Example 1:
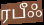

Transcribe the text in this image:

ரபீஃ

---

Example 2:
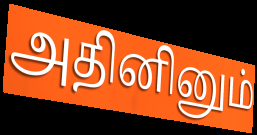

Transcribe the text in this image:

அதினினும்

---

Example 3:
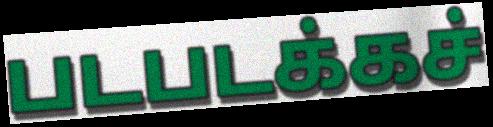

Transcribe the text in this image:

படபடக்கச்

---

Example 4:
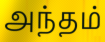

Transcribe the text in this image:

அந்தம்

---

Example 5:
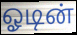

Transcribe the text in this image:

ஓடின்